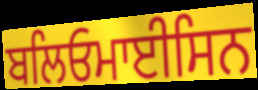
ਬਲਿਓਮਾਈਸਿਨ